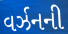
વર્ઝનની